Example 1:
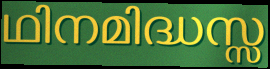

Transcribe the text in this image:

ഥിനമിദ്ധസ്സ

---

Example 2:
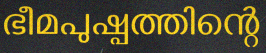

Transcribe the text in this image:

ഭീമപുഷ്പത്തിന്റെ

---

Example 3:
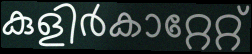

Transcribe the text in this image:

കുളിർകാറ്റേറ്റ്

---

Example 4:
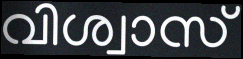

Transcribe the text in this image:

വിശ്വാസ്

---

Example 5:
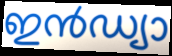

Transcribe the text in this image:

ഇൻഡ്യാ